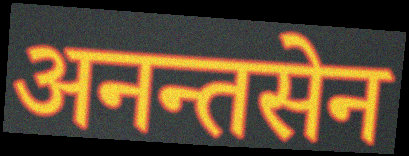
अनन्तसेन